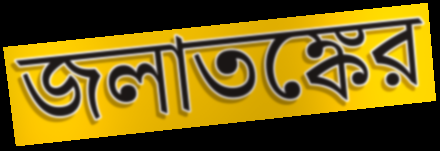
জলাতঙ্কের